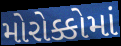
મોરોક્કોમાં